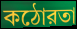
কঠোরতা